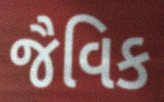
જૈવિક